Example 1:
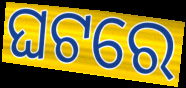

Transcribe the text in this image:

ଘଟରେ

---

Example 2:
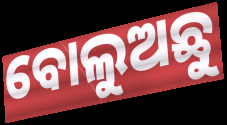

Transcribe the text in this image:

ବୋଲୁଅଛୁ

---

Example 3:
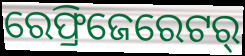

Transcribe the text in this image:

ରେଫ୍ରିଜେରେଟର୍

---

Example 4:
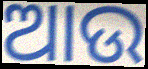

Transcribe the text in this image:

ଆଉ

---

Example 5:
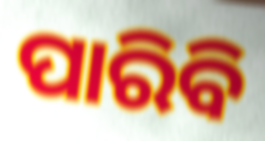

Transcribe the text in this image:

ପାରିବି